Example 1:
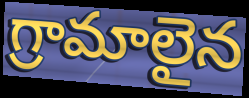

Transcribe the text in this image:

గ్రామాలైన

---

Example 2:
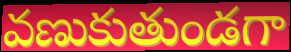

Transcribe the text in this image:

వణుకుతుండగా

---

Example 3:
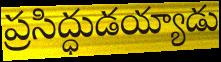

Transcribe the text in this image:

ప్రసిద్ధుడయ్యాడు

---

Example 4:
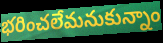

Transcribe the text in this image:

భరించలేమనుకున్నాం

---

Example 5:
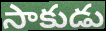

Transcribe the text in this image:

సాకుడు